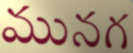
మునగ